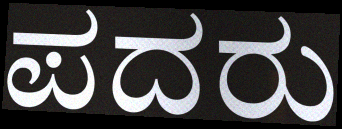
ಪದರು